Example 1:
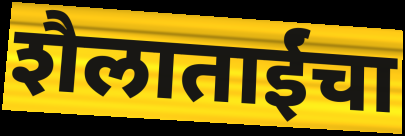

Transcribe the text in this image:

शैलाताईंचा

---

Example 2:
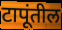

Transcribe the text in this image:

टापूंतील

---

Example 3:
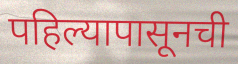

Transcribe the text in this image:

पहिल्यापासूनची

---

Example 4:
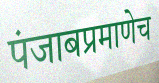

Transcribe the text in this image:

पंजाबप्रमाणेच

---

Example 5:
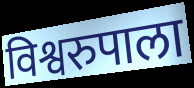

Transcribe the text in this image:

विश्वरुपाला